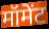
मॉमेंट